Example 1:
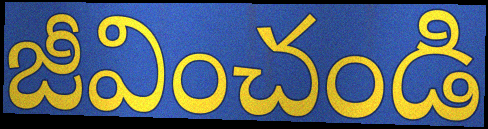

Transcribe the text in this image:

జీవించండి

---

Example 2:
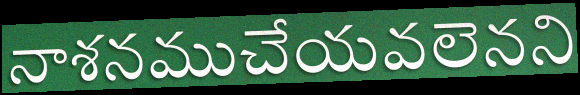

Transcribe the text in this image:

నాశనముచేయవలెనని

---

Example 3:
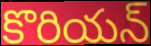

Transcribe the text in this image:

కొరియన్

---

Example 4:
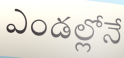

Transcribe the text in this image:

ఎండల్లోనే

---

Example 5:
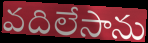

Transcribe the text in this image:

వదిలేసాను